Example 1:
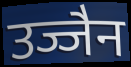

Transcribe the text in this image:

उज्जैन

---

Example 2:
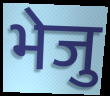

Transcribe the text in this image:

भेजु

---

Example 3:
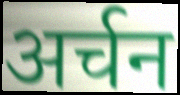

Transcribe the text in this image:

अर्चन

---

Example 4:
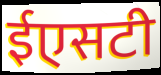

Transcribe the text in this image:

ईएसटी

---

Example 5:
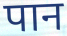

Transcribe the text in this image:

पान